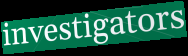
investigators